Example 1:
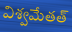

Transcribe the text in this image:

విశ్వమేతత్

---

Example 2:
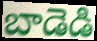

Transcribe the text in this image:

బాడెడి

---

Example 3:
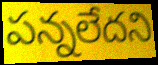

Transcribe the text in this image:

పన్నలేదని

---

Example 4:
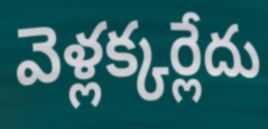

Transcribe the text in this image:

వెళ్లక్కర్లేదు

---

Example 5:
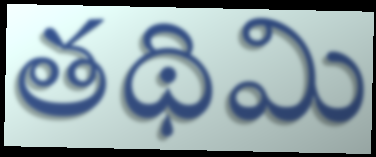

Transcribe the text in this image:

తథిమి